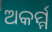
ଅକର୍ମ୍ମ